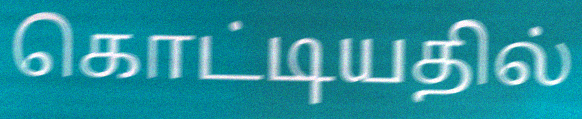
கொட்டியதில்